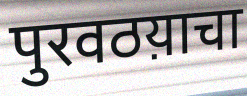
पुरवठय़ाचा